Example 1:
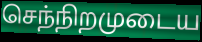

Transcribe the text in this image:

செந்நிறமுடைய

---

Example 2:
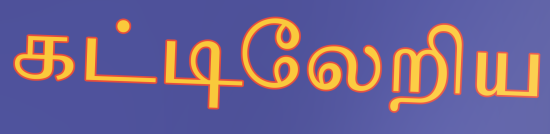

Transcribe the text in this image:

கட்டிலேறிய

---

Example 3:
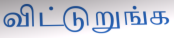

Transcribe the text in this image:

விட்டுறுங்க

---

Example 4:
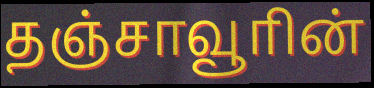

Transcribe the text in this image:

தஞ்சாவூரின்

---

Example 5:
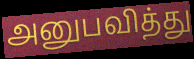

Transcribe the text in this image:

அனுபவித்து